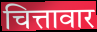
चित्तावार